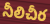
నీలిచీర